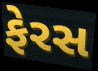
ફેરસ